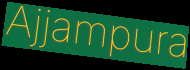
Ajjampura